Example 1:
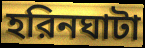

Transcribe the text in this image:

হরিনঘাটা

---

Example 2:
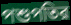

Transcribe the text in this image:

পশুপতির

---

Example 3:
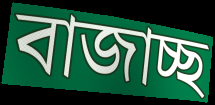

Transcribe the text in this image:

বাজাচ্ছ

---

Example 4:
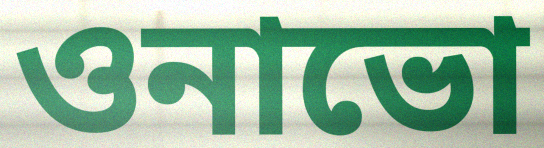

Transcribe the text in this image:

ওনাভো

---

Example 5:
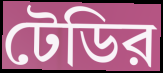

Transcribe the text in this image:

টেডির